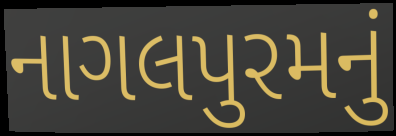
નાગલપુરમનું